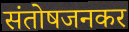
संतोषजनकर